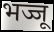
भज्जू